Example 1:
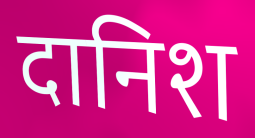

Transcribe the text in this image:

दानिश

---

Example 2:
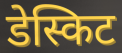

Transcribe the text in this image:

डेस्किट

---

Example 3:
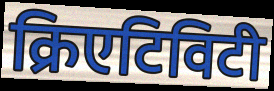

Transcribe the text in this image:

क्रिएटिविटी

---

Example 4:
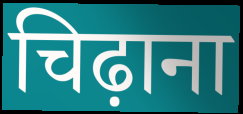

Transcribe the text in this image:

चिढ़ाना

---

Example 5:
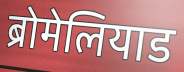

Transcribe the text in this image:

ब्रोमेलियाड